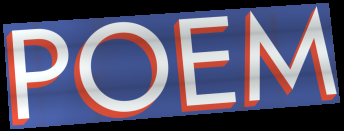
POEM